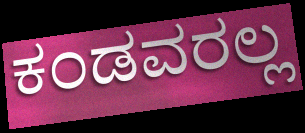
ಕಂಡವರಲ್ಲ